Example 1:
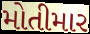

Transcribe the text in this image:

મોતીમાર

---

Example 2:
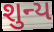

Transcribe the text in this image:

શુન્ય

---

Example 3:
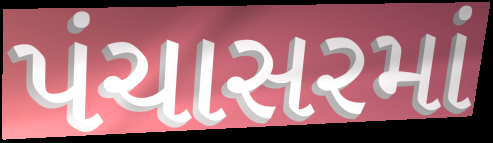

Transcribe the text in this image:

પંચાસરમાં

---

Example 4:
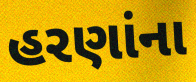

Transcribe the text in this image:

હરણાંના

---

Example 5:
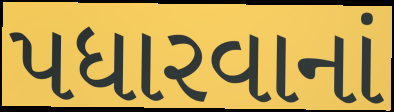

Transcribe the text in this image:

પધારવાનાં